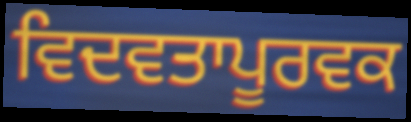
ਵਿਦਵਤਾਪੂਰਵਕ